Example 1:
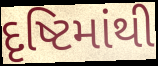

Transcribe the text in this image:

દૃષ્ટિમાંથી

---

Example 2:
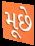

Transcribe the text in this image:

મૂછે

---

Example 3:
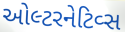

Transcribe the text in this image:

ઓલ્ટરનેટિવ્સ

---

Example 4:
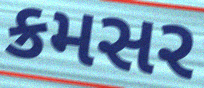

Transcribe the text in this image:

ક્રમસર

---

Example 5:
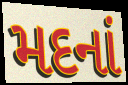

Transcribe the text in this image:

મદનાં